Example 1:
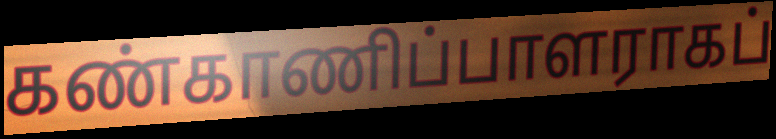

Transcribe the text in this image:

கண்காணிப்பாளராகப்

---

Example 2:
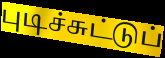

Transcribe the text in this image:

புடிச்சுட்டுப்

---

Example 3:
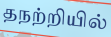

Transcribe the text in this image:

தநற்றியில்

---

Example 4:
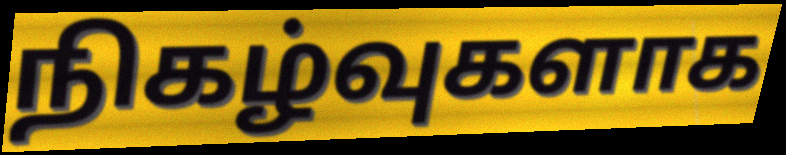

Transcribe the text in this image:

நிகழ்வுகளாக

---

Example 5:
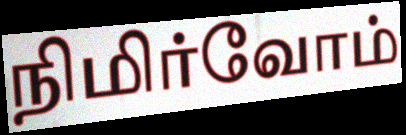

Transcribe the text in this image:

நிமிர்வோம்